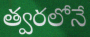
త్వరలోనే